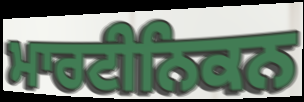
ਮਾਰਟੀਨਿਕਨ